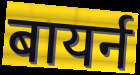
बायर्न